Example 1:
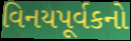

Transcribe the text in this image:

વિનયપૂર્વકનો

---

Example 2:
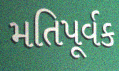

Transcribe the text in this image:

મતિપૂર્વક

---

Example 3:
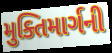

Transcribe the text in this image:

મુક્તિમાર્ગની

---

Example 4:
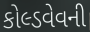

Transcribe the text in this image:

કોલ્ડવેવની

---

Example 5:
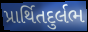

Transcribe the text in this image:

પ્રાર્થિતદુર્લભ